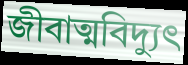
জীবাত্মবিদ্যুৎ